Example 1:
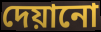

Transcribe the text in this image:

দেয়ানো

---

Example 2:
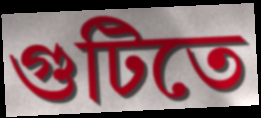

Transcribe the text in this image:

গুটিতে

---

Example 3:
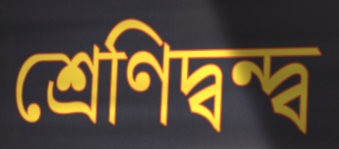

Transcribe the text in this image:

শ্রেণিদ্বন্দ্ব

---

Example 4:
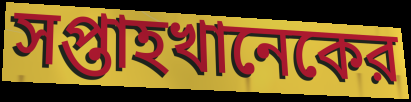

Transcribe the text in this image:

সপ্তাহখানেকের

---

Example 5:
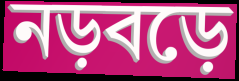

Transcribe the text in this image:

নড়বড়ে